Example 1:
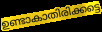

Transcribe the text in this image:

ഉണ്ടാകാതിരിക്കട്ടെ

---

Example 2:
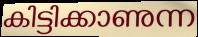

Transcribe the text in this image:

കിട്ടിക്കാണുന്ന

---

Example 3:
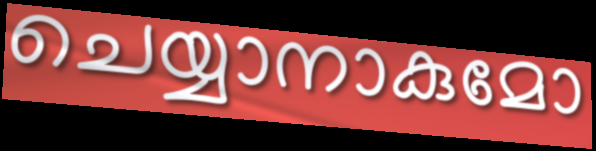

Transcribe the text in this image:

ചെയ്യാനാകുമോ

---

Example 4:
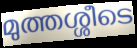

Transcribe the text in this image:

മുത്തശ്ശീടെ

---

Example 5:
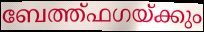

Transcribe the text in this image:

ബേത്ത്ഫഗയ്ക്കും